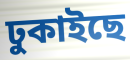
ঢুকাইছে